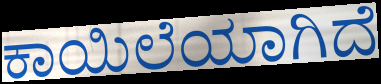
ಕಾಯಿಲೆಯಾಗಿದೆ